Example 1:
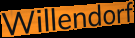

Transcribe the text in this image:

Willendorf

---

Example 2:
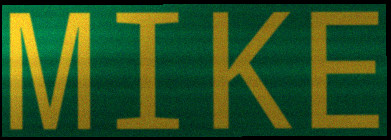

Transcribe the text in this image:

MIKE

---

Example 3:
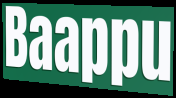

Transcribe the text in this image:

Baappu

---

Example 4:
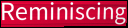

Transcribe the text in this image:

Reminiscing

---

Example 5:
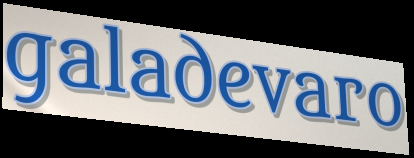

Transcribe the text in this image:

galadevaro